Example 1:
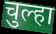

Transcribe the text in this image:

चुल्हा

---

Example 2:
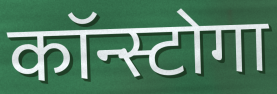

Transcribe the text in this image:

कॉन्स्टोगा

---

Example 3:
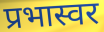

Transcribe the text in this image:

प्रभास्वर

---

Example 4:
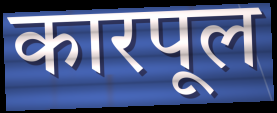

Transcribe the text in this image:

कारपूल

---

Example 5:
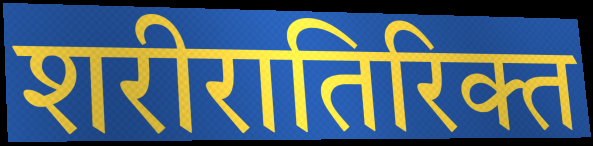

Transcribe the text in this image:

शरीरातिरिक्त